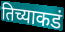
तिच्याकडं